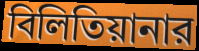
বিলিতিয়ানার